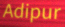
Adipur